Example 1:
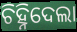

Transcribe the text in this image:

ଚିହ୍ନିଦେଲା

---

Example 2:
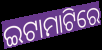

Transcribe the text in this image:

ଇଟାମାଟିରେ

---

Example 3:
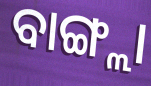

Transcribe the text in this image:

ବାଙ୍ଗ୍ଲା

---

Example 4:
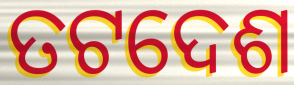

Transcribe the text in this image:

ତଟଦେଶ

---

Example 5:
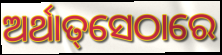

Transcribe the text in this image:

ଅର୍ଥାତ୍‌ସେଠାରେ